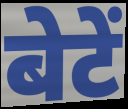
बेटें